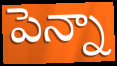
పెన్నా